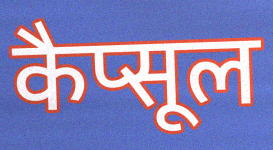
कैप्सूल